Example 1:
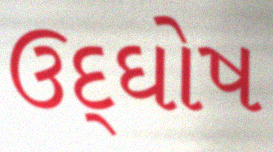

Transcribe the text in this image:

ઉદ્‌ઘોષ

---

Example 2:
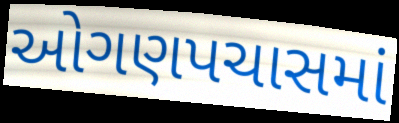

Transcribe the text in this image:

ઓગણપચાસમાં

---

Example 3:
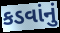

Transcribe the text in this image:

કડવાંનું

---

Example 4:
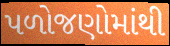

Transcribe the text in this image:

પળોજણોમાંથી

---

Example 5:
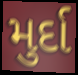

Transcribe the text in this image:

મુર્દા